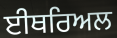
ਈਥਰਿਅਲ